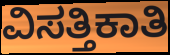
ವಿಸತ್ತಿಕಾತಿ